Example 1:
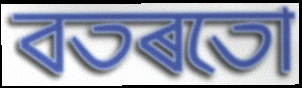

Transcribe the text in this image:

বতৰতো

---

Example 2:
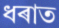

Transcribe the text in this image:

ধৰাত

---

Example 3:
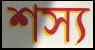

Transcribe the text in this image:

শস্য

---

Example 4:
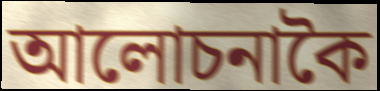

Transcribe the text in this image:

আলোচনাকৈ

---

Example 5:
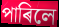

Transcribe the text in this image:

পাৰিলে